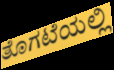
ತೊಗಟೆಯಲ್ಲಿ